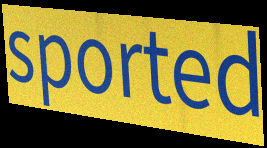
sported